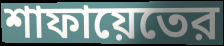
শাফায়েতের